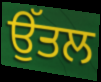
ਉੱਤਲ